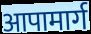
आपामार्ग